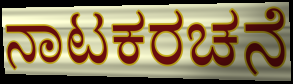
ನಾಟಕರಚನೆ